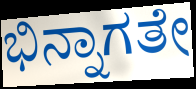
ಭಿನ್ನಾಗತೇ